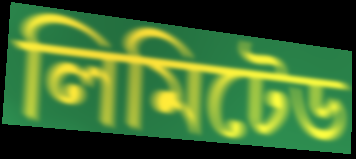
লিমিটেড